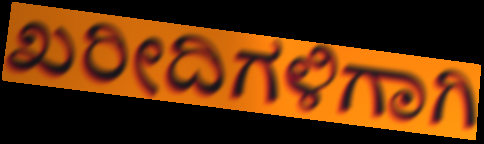
ಖರೀದಿಗಳಿಗಾಗಿ